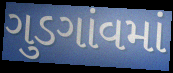
ગુડગાંવમાં